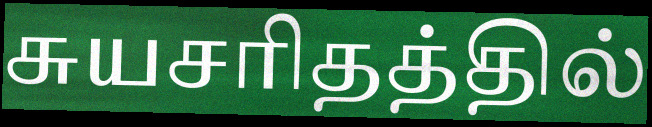
சுயசரிதத்தில்